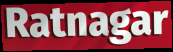
Ratnagar